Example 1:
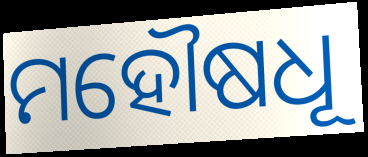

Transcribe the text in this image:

ମହୌଷଧୂ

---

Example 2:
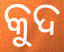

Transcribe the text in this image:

କୁଦ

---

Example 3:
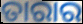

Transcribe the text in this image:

ତାରାର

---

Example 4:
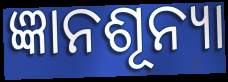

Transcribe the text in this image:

ଜ୍ଞାନଶୂନ୍ୟା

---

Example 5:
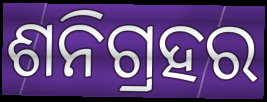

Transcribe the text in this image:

ଶନିଗ୍ରହର